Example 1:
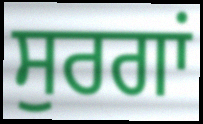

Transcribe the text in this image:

ਸੁਰਗਾਂ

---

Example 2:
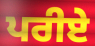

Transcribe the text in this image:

ਪਰੀਏ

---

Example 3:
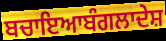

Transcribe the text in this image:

ਬਚਾਇਆਬੰਗਲਾਦੇਸ਼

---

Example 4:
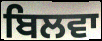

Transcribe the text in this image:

ਬਿਲਵਾ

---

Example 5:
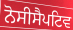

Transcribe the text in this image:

ਨੋਸੀਸੈਪਟਿਵ